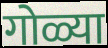
गोळ्या